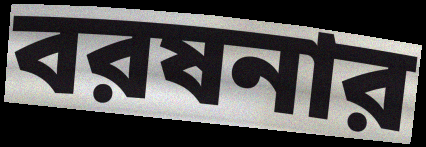
বরষনার